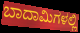
ಬಾದಾಮಿಗಳಲ್ಲಿ